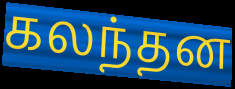
கலந்தன